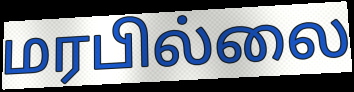
மரபில்லை